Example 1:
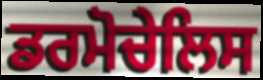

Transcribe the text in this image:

ਡਰਮੋਚੇਲਿਸ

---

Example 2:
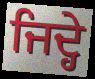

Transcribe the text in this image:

ਜਿਦ੍ਹੇ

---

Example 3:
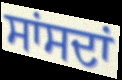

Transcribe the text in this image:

ਸਾਂਸਦਾਂ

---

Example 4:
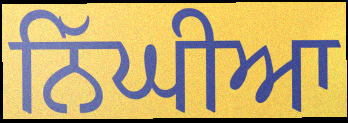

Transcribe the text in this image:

ਨਿੱਘੀਆ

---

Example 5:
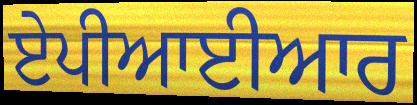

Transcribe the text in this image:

ਏਪੀਆਈਆਰ